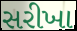
સરીખા